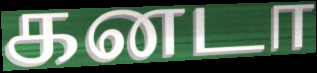
கனடா